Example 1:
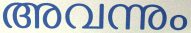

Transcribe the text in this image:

അവന്നും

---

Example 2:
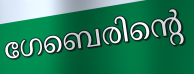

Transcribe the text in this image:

ഗേബെരിന്റെ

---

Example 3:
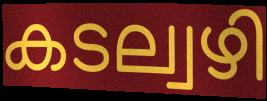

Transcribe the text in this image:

കടല്വഴി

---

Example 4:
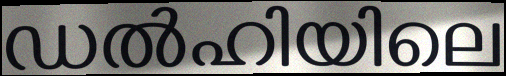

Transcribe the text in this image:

ഡൽഹിയിലെ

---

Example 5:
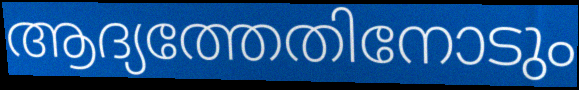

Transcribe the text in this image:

ആദ്യത്തേതിനോടും